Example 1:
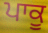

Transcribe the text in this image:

ਪਾਕੂ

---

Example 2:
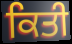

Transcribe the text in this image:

ਕਿਤੀ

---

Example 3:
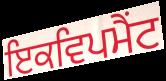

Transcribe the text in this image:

ਇਕਵਿਪਮੈਂਟ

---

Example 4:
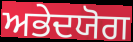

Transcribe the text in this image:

ਅਭੇਦਯੋਗ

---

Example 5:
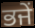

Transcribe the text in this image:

ਭਜੇਂ